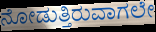
ನೋಡುತ್ತಿರುವಾಗಲೇ